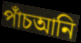
পাঁচআনি